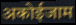
अकोईजाम